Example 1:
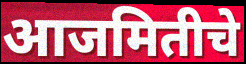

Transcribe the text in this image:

आजमितीचे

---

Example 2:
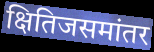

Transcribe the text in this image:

क्षितिजसमांतर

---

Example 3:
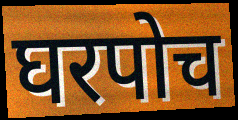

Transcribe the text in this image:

घरपोच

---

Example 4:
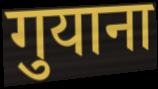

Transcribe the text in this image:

गुयाना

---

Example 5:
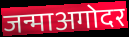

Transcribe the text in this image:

जन्माअगोदर